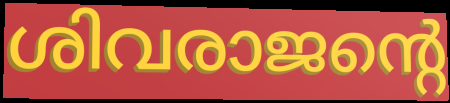
ശിവരാജന്റെ